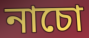
নাচো